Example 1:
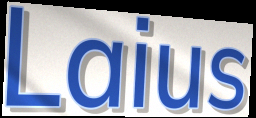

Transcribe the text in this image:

Laius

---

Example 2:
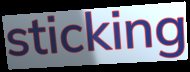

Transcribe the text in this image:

sticking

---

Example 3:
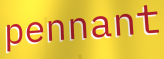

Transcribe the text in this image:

pennant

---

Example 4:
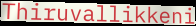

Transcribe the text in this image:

Thiruvallikkeni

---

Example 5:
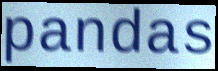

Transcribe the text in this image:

pandas